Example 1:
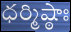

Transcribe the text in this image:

ధర్మిష్ఠాః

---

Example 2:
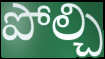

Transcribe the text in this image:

పోల్చి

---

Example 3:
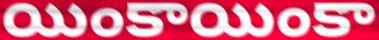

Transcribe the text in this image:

యింకాయింకా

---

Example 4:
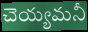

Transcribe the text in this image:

చెయ్యమనీ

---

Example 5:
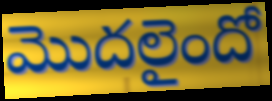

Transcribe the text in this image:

మొదలైందో